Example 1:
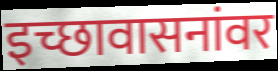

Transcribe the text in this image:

इच्छावासनांवर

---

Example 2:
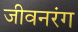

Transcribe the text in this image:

जीवनरंग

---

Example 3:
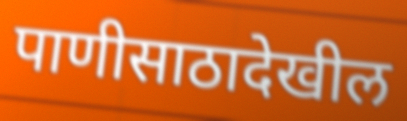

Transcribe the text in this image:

पाणीसाठादेखील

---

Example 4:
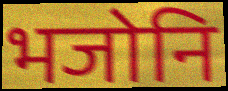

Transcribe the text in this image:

भजोनि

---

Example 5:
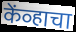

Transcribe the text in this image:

केंव्हाचा